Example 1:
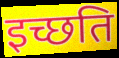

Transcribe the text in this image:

इच्छति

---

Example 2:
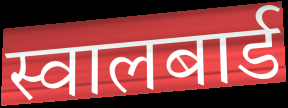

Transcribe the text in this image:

स्वालबार्ड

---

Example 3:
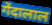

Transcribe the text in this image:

गेंदालाल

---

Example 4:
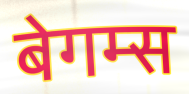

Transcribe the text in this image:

बेगम्स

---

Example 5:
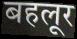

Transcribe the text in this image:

बहलूर